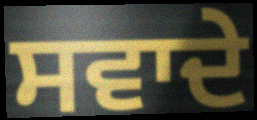
ਸਵਾਦੇ